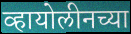
व्हायोलीनच्या